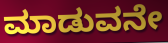
ಮಾಡುವನೇ